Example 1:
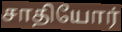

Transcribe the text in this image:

சாதியோர்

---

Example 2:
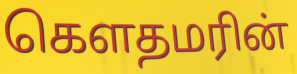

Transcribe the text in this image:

கௌதமரின்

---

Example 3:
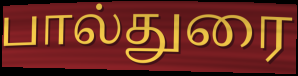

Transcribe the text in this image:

பால்துரை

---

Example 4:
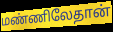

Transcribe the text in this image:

மண்ணிலேதான்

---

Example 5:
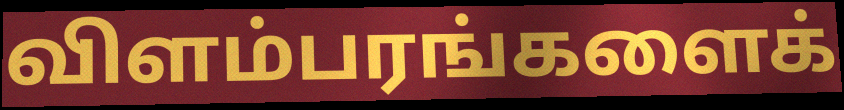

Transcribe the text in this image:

விளம்பரங்களைக்